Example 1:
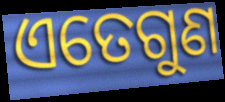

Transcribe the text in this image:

ଏତେଗୁଣ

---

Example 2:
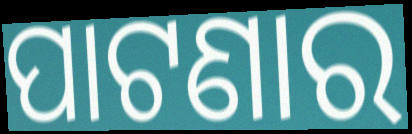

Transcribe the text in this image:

ପାଟଣାର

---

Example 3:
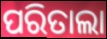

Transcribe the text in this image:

ପରିତାଲା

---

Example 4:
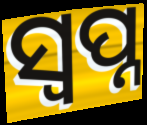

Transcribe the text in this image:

ସ୍ବପ୍ନ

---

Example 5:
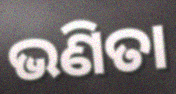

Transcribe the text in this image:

ଭଣିତା